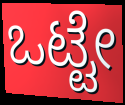
ಒಟ್ಟೇ